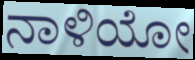
ನಾಳಿಯೋ